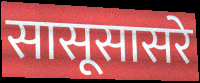
सासूसासरे